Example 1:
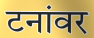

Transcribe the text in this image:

टनांवर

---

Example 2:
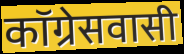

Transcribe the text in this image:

कॉग्रेसवासी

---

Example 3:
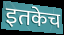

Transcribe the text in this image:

इतकेच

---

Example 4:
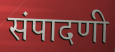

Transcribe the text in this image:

संपादणी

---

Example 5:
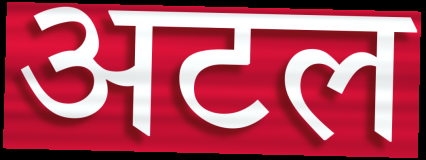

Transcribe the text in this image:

अटल